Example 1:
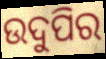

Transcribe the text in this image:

ଉଦୁପିର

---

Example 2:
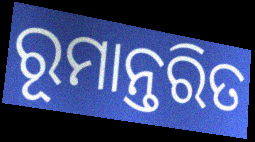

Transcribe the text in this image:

ରୂମାନ୍ତରିତ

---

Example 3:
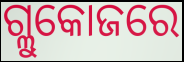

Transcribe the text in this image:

ଗ୍ଲୁକୋଜରେ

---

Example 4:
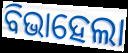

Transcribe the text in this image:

ବିଭାହେଲା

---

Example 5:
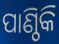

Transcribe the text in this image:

ପାଣ୍ଠିକି